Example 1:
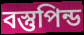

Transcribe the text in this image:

বস্তুপিন্ড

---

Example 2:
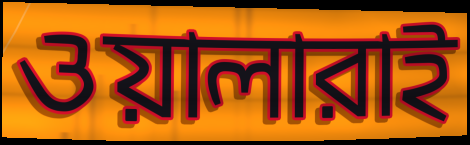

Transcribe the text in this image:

ওয়ালারাই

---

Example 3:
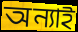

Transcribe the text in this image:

অন্যাই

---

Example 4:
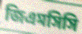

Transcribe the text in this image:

জিএমসিসি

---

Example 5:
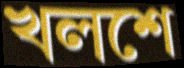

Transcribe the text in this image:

খলশে